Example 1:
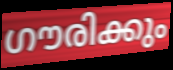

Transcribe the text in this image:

ഗൗരിക്കും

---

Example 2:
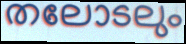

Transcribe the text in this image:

തലോടലും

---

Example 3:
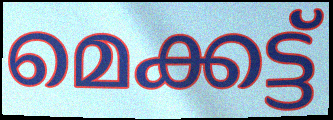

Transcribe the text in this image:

മെക്കട്ട്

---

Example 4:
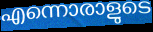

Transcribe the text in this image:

എന്നൊരാളുടെ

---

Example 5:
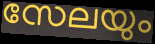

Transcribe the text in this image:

സേലയും